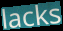
lacks